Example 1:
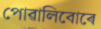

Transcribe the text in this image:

পোৱালিবোৰে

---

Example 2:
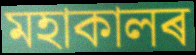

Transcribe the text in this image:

মহাকালৰ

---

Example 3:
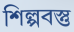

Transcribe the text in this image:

শিল্পবস্তু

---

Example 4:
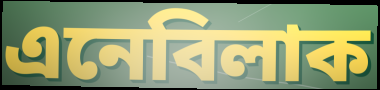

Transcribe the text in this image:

এনেবিলাক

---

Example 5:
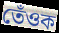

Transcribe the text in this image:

তেঁওক